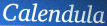
Calendula